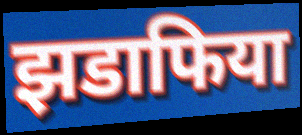
झडाफिया